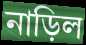
নাড়িল